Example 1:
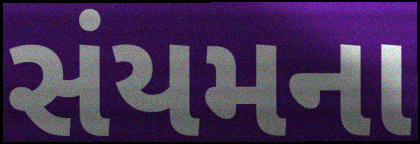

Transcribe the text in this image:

સંયમના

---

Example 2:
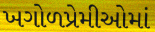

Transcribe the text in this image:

ખગોળપ્રેમીઓમાં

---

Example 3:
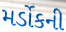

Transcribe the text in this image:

મર્ડોકની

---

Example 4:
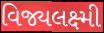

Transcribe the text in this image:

વિજ્યલક્ષ્મી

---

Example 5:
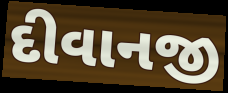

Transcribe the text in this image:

દીવાનજી